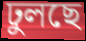
ঢুলছে